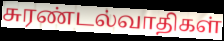
சுரண்டல்வாதிகள்